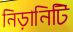
নিড়ানিটি